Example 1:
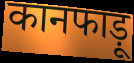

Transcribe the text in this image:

कानफाड़ू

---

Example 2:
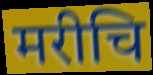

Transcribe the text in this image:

मरीचि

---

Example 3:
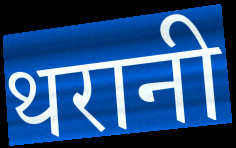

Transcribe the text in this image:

थरानी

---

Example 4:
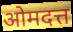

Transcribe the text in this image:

ओमदत्त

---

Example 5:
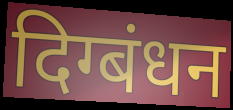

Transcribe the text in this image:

दिग्बंधन